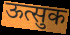
ऊत्सुक